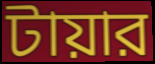
টায়ার